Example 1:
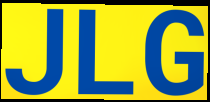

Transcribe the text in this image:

JLG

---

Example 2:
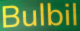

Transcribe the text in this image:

Bulbil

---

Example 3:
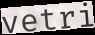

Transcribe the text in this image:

vetri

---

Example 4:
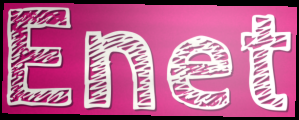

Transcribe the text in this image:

Enet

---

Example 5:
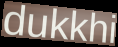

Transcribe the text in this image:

dukkhi